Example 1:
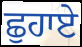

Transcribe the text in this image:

ਛੁਹਾਏ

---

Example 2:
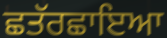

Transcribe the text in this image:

ਛਤੱਰਛਾਇਆ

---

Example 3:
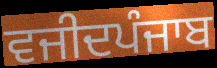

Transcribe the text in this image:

ਵਜੀਦਪੰਜਾਬ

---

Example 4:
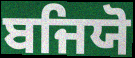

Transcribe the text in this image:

ਬਜਿਯੋ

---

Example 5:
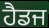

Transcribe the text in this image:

ਹੈਡਜ